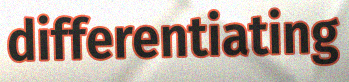
differentiating